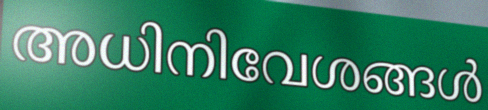
അധിനിവേശങ്ങൾ